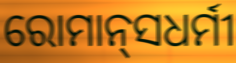
ରୋମାନ୍‌ସଧର୍ମୀ